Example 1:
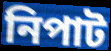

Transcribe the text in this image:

নিপাট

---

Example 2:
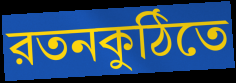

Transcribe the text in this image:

রতনকুঠিতে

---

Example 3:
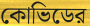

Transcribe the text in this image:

কোভিডের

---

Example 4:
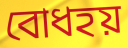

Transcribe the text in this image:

বোধহয়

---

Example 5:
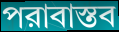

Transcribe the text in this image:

পরাবাস্তব